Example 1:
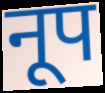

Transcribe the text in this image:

नूप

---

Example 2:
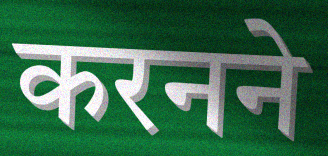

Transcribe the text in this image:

करनने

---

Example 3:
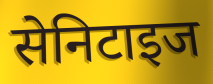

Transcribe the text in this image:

सेनिटाइज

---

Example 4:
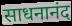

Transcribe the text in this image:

साधनानंद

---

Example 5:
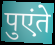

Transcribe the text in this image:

पुएंते